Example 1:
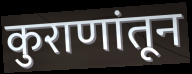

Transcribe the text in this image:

कुराणांतून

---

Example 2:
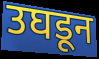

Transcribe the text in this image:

उघडून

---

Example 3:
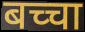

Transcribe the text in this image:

बच्चा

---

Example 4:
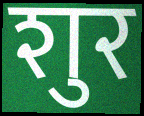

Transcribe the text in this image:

शुर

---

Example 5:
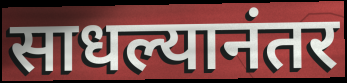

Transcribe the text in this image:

साधल्यानंतर